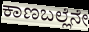
ಕಾಣಬಲ್ಲೆನೇ